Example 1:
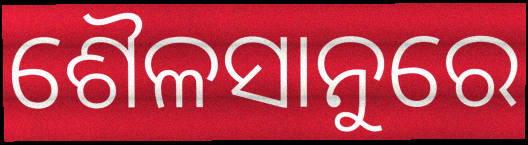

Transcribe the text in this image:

ଶୈଳସାନୁରେ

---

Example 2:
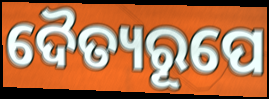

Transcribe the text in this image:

ଦୈତ୍ୟରୂପେ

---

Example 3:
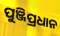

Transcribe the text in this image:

ପୁଞ୍ଜିପ୍ରଧାନ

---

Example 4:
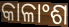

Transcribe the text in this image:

କାଳାଂଶ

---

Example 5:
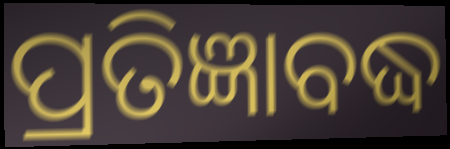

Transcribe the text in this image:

ପ୍ରତିଜ୍ଞାବଦ୍ଧ